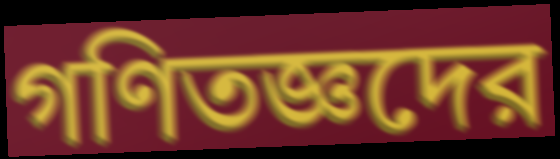
গণিতজ্ঞদের